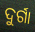
ଦୁର୍ଗା